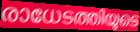
രാധേടത്തിയുടെ